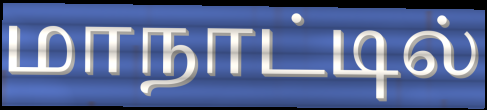
மாநாட்டில்